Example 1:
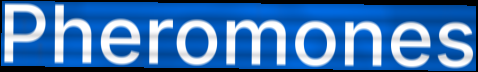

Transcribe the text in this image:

Pheromones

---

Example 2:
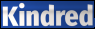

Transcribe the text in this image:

Kindred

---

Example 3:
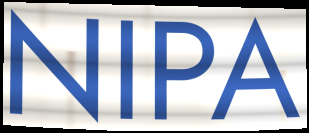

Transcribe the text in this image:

NIPA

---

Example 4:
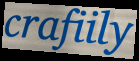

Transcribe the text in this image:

crafiily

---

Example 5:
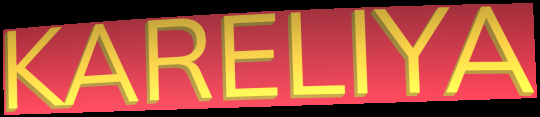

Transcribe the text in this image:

KARELIYA